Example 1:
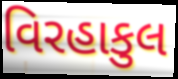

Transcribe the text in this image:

વિરહાકુલ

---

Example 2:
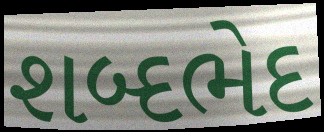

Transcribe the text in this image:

શબ્દભેદ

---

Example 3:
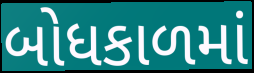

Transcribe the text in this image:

બોધકાળમાં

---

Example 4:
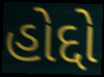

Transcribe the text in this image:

હોદ્દો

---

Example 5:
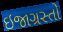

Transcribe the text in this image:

ઇજાગ્રસ્તો